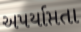
અપર્યાપ્તતા